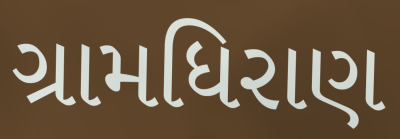
ગ્રામધિરાણ